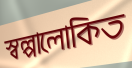
স্বল্পালোকিত